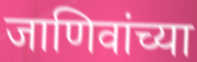
जाणिवांच्या